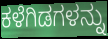
ಕಳೆಗಿಡಗಳನ್ನು